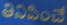
తినిపించే